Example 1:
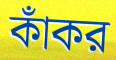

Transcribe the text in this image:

কাঁকর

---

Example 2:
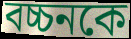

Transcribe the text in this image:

বচ্চনকে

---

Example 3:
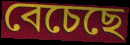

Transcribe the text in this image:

বেচেছে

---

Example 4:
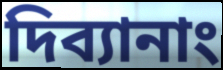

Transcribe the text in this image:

দিব্যানাং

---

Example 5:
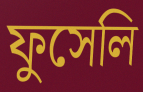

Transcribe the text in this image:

ফুসেলি